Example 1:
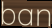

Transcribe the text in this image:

ban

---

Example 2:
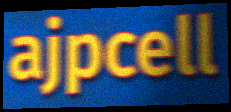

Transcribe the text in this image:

ajpcell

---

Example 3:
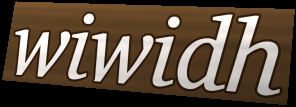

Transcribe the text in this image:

wiwidh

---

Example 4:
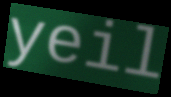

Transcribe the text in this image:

yeil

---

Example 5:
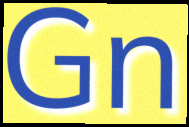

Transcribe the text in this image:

Gn